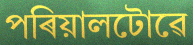
পৰিয়ালটোৱে